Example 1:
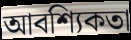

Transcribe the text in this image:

আবশ্যিকতা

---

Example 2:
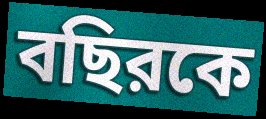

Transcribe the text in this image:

বছিরকে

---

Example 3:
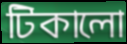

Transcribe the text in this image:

টিকালো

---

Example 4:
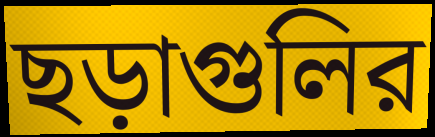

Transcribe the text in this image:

ছড়াগুলির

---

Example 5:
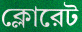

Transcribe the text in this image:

ক্লোরেট